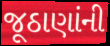
જૂઠાણાંની